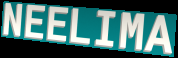
NEELIMA